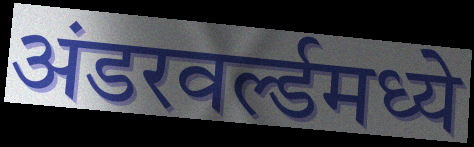
अंडरवर्ल्डमध्ये